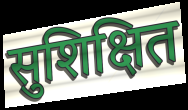
सुशिक्षित